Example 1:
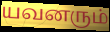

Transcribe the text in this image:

யவனரும்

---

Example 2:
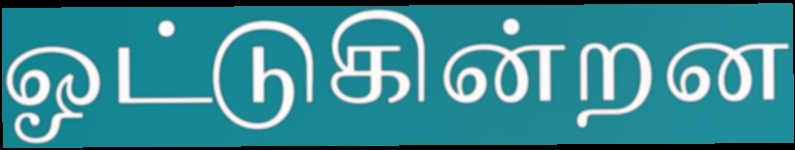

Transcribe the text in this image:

ஓட்டுகின்றன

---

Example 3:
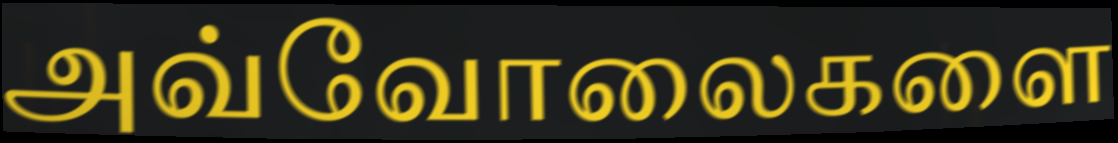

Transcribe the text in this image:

அவ்வோலைகளை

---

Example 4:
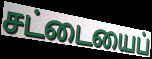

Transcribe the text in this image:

சட்டையைப்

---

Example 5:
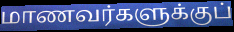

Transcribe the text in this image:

மாணவர்களுக்குப்